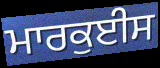
ਮਾਰਕੁਈਸ